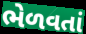
ભેળવતાં